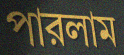
পারলাম